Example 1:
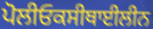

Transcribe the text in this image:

ਪੋਲੀਓਕਸੀਥਾਈਲੀਨ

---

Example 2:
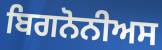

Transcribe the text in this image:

ਬਿਗਨੋਨੀਅਸ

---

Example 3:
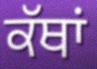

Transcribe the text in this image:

ਕੱਥਾਂ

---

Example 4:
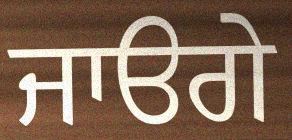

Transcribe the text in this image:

ਜਾੳਗੇ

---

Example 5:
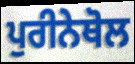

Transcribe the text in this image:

ਪੁਰੀਨੇਥੋਲ